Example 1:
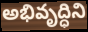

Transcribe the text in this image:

అభివృద్ధిని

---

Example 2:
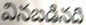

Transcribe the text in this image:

వినబడినది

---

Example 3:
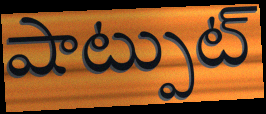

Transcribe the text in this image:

షాట్పుట్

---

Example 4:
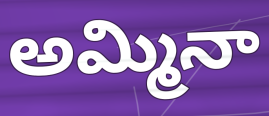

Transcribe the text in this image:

అమ్మినా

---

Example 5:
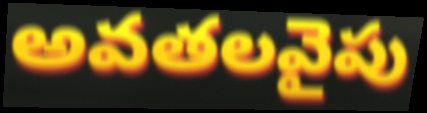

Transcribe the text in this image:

అవతలవైపు